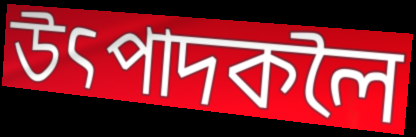
উৎপাদকলৈ